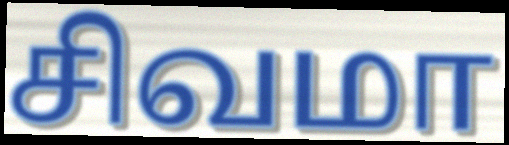
சிவமா